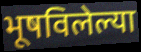
भूषविलेल्या